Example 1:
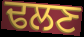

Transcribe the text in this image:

ਢਲਣ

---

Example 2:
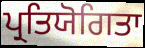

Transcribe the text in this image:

ਪ੍ਰਤਿਯੋਗਿਤਾ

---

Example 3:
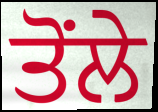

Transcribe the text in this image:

ਤੋਂਲੇ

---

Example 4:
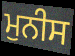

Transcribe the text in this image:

ਮੁਨੀਸ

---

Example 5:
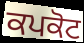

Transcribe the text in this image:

ਕਪਕੋਟ